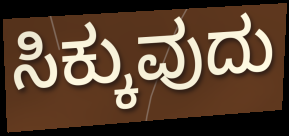
ಸಿಕ್ಕುವುದು